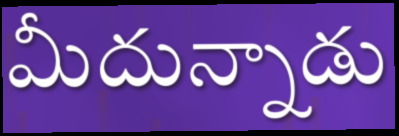
మీదున్నాడు